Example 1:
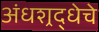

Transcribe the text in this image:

अंधश्रद्धेचे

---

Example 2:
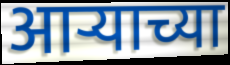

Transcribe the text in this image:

आऱ्याच्या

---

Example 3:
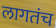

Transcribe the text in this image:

लागतंच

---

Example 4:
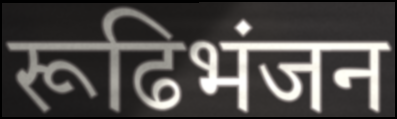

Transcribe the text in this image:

रूढिभंजन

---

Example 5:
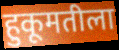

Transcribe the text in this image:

हुकूमतीला